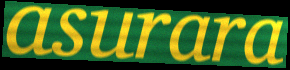
asurara